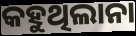
କହୁଥିଲାନା